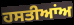
ਹਸਤੀਆਂਅ